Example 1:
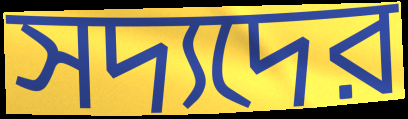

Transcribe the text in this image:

সদ্যদের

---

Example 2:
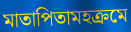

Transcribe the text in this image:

মাতাপিতামহক্রমে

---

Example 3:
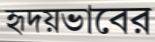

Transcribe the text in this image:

হৃদয়ভাবের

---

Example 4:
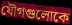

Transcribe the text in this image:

যৌগগুলোকে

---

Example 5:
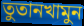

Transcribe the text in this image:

তুতানখামুন